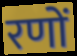
रणों